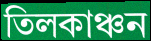
তিলকাঞ্চন